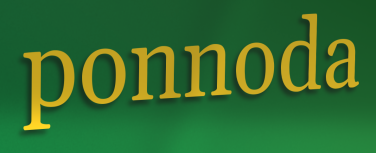
ponnoda